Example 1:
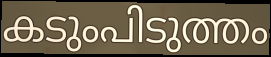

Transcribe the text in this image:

കടുംപിടുത്തം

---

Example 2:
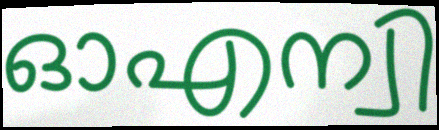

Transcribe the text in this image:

ഓഎന്വി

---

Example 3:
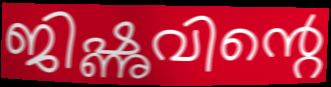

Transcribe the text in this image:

ജിഷ്ണുവിന്റെ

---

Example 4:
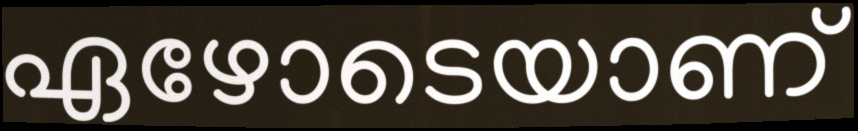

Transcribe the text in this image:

ഏഴോടെയാണ്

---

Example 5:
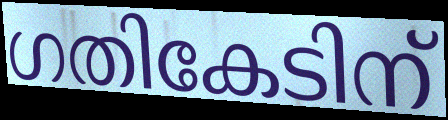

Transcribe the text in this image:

ഗതികേടിന്